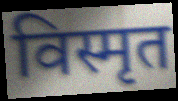
विस्मृत